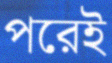
পরেই